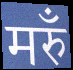
मरुँ